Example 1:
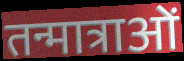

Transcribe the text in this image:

तन्मात्राओं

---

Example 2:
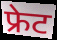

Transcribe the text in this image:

फ्रेट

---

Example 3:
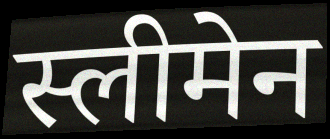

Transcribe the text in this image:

स्लीमेन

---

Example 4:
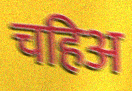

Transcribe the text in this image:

चहिअ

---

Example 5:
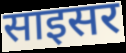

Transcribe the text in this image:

साइसर